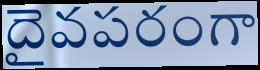
దైవపరంగా